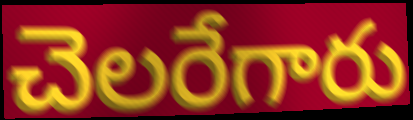
చెలరేగారు